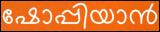
ഷോപ്പിയാൻ